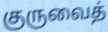
குருவைத்